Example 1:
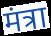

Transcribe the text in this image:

मंत्रा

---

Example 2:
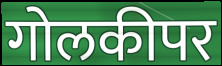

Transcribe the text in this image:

गोलकीपर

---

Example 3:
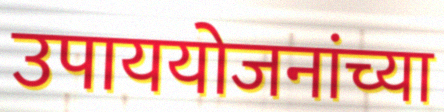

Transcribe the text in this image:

उपाययोजनांच्या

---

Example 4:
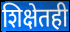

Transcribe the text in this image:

शिक्षेतही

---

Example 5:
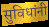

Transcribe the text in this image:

सुविधांनी